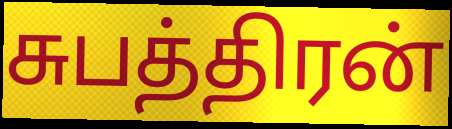
சுபத்திரன்